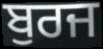
ਬੁਰਜ